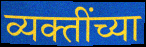
व्यक्तींच्या